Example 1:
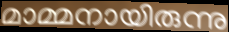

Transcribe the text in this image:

മാമ്മനായിരുന്നു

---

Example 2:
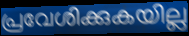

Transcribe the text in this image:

പ്രവേശിക്കുകയില്ല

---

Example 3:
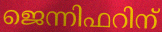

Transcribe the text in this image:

ജെന്നിഫറിന്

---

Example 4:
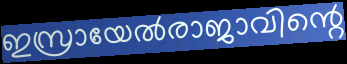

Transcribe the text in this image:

ഇസ്രായേൽരാജാവിന്റെ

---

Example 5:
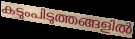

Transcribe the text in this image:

കടുംപിടുത്തങ്ങളിൽ